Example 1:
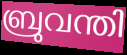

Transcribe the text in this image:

ബ്രുവന്തി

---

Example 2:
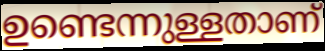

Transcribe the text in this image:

ഉണ്ടെന്നുള്ളതാണ്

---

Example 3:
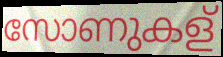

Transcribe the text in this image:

സോണുകള്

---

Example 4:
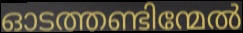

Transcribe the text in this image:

ഓടത്തണ്ടിന്മേൽ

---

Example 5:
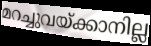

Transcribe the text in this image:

മറച്ചുവയ്ക്കാനില്ല